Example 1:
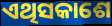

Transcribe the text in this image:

ଏଥିସକାଶେ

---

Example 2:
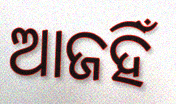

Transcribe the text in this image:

ଆଜହିଁ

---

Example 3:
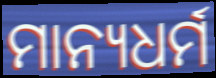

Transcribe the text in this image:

ମାନ୍ୟଧର୍ମ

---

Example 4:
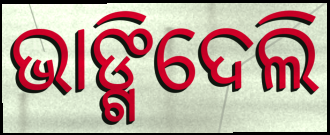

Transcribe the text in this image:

ଭାଙ୍ଗିଦେଲି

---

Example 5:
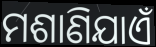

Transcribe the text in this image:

ମଶାଣିଯାଏଁ